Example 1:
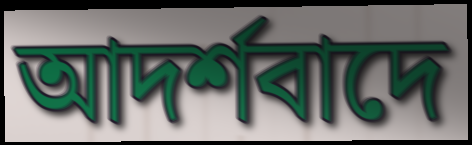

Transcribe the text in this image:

আদর্শবাদে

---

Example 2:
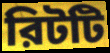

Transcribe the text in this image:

রিটটি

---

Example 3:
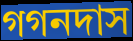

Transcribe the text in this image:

গগনদাস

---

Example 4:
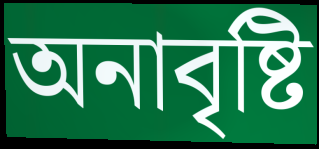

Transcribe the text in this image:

অনাবৃষ্টি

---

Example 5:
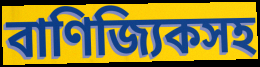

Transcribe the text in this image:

বাণিজ্যিকসহ